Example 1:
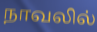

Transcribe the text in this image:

நாவலில்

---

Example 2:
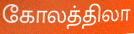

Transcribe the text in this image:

கோலத்திலா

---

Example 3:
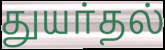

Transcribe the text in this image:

துயர்தல்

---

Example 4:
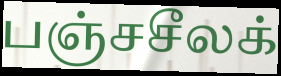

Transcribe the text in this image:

பஞ்சசீலக்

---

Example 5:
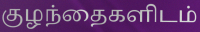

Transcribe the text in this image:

குழந்தைகளிடம்